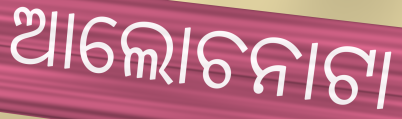
ଆଲୋଚନାଟା